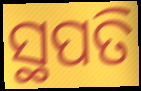
ସ୍ଥପତି